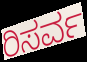
ರಿಸರ್ವ